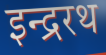
इन्द्ररथ